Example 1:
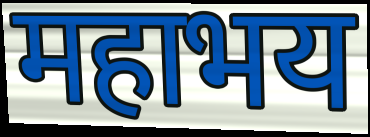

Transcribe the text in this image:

महाभय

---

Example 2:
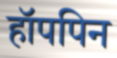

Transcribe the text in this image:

हॉपपिन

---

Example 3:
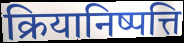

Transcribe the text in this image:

क्रियानिष्पत्ति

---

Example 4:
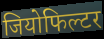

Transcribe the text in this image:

जियोफिल्टर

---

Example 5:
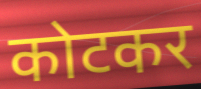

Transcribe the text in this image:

कोटकर